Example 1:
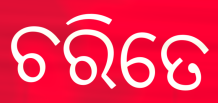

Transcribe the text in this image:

ଚରିତେ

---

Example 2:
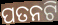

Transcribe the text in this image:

ପତନଟି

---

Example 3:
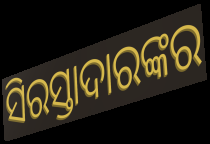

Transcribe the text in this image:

ସିରସ୍ତାଦାରଙ୍କର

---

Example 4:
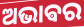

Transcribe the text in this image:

ଅଭାଵର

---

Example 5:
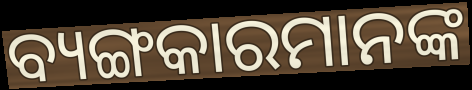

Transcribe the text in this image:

ବ୍ୟଙ୍ଗକାରମାନଙ୍କ